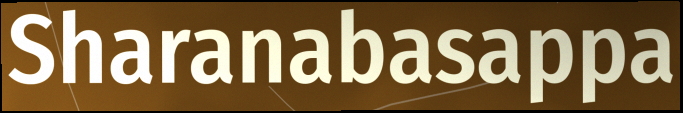
Sharanabasappa